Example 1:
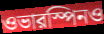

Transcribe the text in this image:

ওভারস্পিনও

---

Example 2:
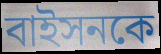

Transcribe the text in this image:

বাইসনকে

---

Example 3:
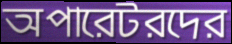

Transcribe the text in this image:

অপারেটরদের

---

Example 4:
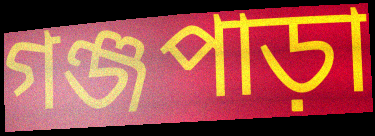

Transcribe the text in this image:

গঞ্জপাড়া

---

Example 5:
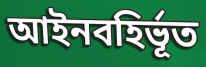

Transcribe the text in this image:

আইনবহির্ভূত